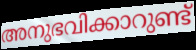
അനുഭവിക്കാറുണ്ട്